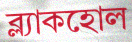
ব্ল্যাকহোল